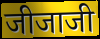
जीजाजी